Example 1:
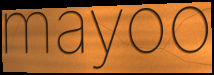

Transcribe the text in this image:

mayoo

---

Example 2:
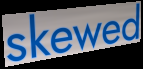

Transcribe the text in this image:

skewed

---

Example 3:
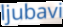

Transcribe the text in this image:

ljubavi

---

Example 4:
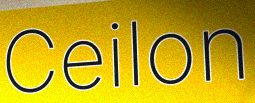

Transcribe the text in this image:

Ceilon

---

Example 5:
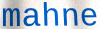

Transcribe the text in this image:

mahne